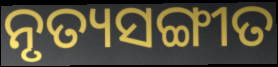
ନୃତ୍ୟସଙ୍ଗୀତ